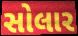
સોલાર